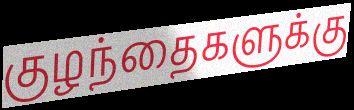
குழந்தைகளுக்கு